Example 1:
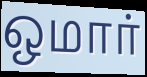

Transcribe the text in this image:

ஒமார்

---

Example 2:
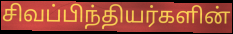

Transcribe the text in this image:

சிவப்பிந்தியர்களின்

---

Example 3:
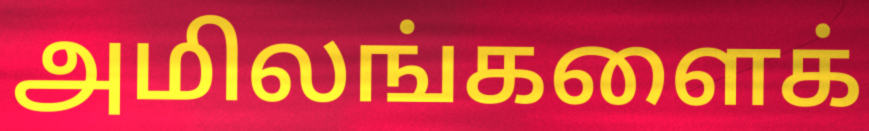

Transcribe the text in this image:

அமிலங்களைக்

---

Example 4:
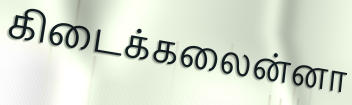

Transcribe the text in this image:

கிடைக்கலைன்னா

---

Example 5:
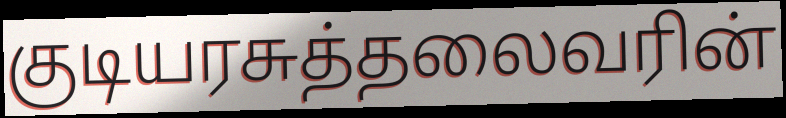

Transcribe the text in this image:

குடியரசுத்தலைவரின்